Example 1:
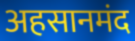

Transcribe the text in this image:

अहसानमंद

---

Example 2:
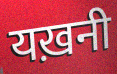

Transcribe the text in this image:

यख़नी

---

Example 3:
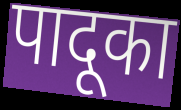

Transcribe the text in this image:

पादूका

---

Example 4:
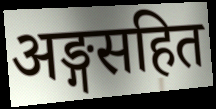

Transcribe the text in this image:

अङ्गसहित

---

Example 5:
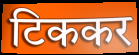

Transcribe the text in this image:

टिककर